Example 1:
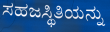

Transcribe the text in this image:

ಸಹಜಸ್ಥಿತಿಯನ್ನು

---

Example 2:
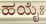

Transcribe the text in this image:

ಹಯೈಃ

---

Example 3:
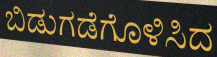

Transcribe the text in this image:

ಬಿಡುಗಡೆಗೊಳಿಸಿದ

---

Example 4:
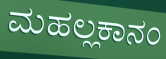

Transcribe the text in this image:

ಮಹಲ್ಲಕಾನಂ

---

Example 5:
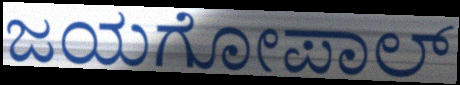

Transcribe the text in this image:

ಜಯಗೋಪಾಲ್